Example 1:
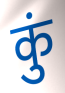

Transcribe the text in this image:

कुं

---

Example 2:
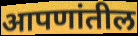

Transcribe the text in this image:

आपणांतील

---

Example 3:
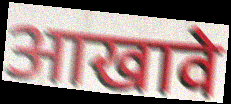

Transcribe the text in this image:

आखावे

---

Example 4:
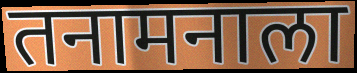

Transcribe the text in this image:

तनामनाला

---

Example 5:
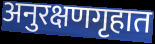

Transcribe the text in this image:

अनुरक्षणगृहात